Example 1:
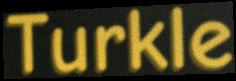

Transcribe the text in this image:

Turkle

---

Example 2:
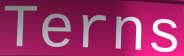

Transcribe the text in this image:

Terns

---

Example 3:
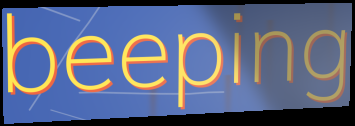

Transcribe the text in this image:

beeping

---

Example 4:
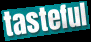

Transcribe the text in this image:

tasteful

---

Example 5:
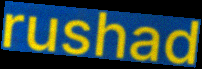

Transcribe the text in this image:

rushad